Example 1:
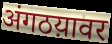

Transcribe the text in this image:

अंगठय़ावर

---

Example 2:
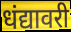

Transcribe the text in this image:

धंद्यावरी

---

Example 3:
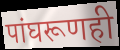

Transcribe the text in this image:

पांघरूणही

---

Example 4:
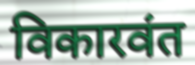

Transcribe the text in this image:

विकारवंत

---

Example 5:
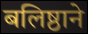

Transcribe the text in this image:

बलिष्ठाने